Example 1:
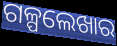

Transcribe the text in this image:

ଗଳ୍ପଲେଖାର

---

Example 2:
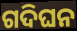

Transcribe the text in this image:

ଗଦିଘନ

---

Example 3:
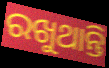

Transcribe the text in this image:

ରଖୁଥାନ୍ତି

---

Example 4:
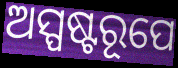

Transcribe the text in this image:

ଅସ୍ପଷ୍ଟରୂପେ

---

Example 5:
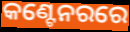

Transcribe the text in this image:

କଣ୍ଟେନରରେ